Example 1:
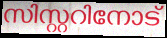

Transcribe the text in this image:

സിസ്റ്ററിനോട്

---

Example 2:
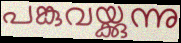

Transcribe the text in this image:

പങ്കുവയ്ക്കുന്നു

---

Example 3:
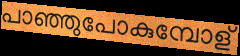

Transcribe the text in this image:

പാഞ്ഞുപോകുമ്പോള്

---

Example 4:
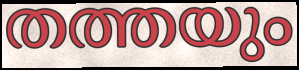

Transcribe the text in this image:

തത്തയും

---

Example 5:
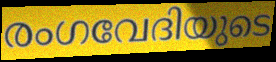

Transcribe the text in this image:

രംഗവേദിയുടെ